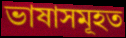
ভাষাসমূহত